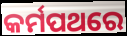
କର୍ମପଥରେ